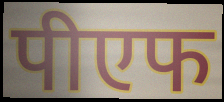
पीएफ